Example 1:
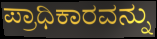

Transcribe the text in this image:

ಪ್ರಾಧಿಕಾರವನ್ನು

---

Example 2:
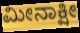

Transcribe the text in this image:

ಮೀನಾಕ್ಷೀ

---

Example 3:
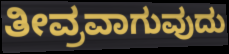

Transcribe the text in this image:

ತೀವ್ರವಾಗುವುದು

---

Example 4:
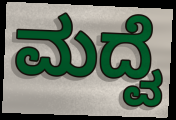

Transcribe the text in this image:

ಮದ್ವೆ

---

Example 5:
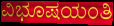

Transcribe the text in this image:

ವಿಭೂಷಯಂತಿ